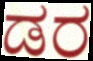
ಡರ